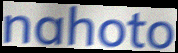
nahoto